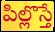
పిల్లొస్తే